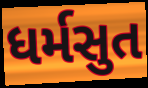
ધર્મસુત